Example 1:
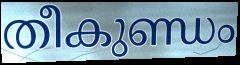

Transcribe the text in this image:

തീകുണ്ഡം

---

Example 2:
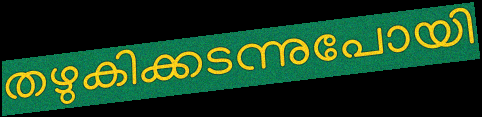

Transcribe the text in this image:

തഴുകിക്കടന്നുപോയി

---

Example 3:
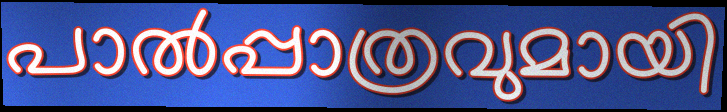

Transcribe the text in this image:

പാൽപ്പാത്രവുമായി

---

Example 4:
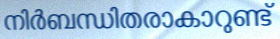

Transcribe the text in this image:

നിർബന്ധിതരാകാറുണ്ട്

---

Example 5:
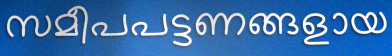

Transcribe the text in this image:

സമീപപട്ടണങ്ങളായ